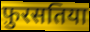
फ़ुरसतिया